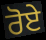
ਰੋਏ